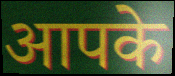
आपके